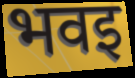
भवइ